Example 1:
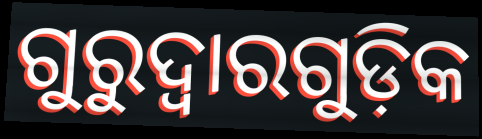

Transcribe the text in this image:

ଗୁରୁଦ୍ବାରଗୁଡ଼ିକ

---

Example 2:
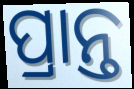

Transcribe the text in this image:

ପ୍ରାନ୍ତ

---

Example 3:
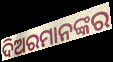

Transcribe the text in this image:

ଦିଅରମାନଙ୍କର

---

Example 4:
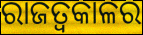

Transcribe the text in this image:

ରାଜତ୍ୱକାଳର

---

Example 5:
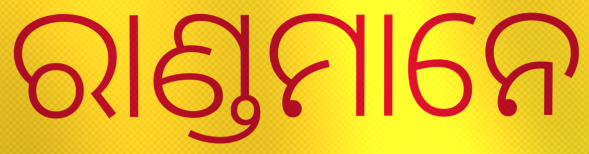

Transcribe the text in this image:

ରାଣ୍ଡମାନେ